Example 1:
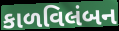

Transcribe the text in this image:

કાળવિલંબન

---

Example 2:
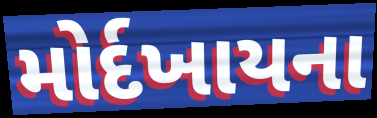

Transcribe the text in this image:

મોર્દખાયના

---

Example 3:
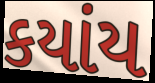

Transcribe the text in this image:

કયાંય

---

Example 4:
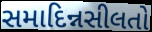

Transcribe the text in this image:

સમાદિન્નસીલતો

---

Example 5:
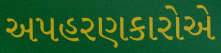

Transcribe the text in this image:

અપહરણકારોએ